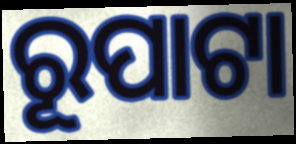
ରୂପାଟା